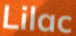
Lilac